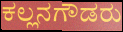
ಕಲ್ಲನಗೌಡರು